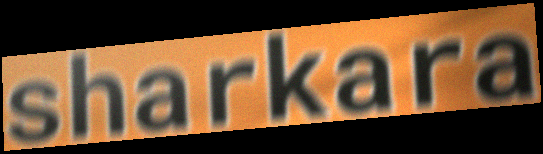
sharkara